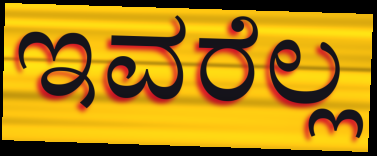
ಇವರೆಲ್ಲ